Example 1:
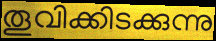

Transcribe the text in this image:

തൂവിക്കിടക്കുന്നു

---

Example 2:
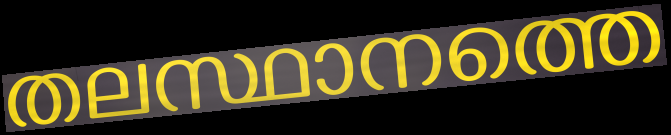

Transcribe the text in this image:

തലസ്ഥാനത്തെ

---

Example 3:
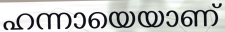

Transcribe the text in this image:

ഹന്നായെയാണ്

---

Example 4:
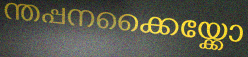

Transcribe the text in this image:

ന്തപ്പനക്കൈയ്ക്കോ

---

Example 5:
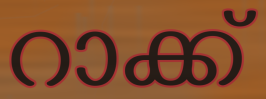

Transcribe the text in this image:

റാക്ക്